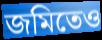
জমিতেও